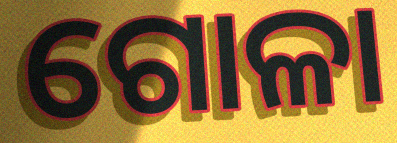
ଗୋଳା